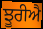
ਝੂਰੀਐ